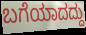
ಬಗೆಯಾದದ್ದು